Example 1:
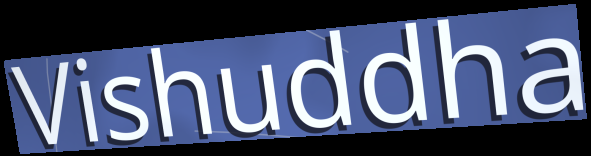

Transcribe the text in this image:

Vishuddha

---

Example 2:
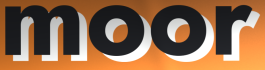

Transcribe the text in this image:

moor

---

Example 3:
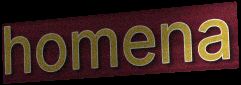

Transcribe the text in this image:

homena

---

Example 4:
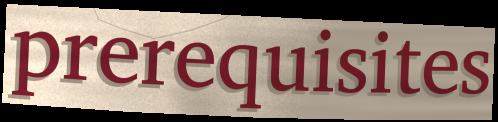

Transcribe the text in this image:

prerequisites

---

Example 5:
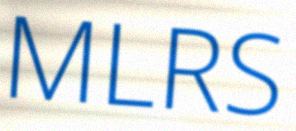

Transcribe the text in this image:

MLRS